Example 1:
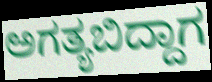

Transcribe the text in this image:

ಅಗತ್ಯಬಿದ್ದಾಗ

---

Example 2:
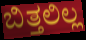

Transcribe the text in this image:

ಬಿತ್ತಲಿಲ್ಲ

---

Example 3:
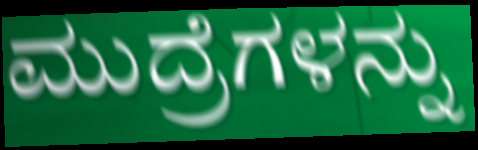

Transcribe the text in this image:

ಮುದ್ರೆಗಳನ್ನು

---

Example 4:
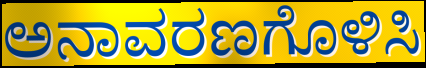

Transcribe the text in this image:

ಅನಾವರಣಗೊಳಿಸಿ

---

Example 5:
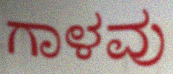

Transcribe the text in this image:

ಗಾಳವು